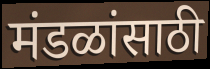
मंडळांसाठी